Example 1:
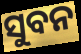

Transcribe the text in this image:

ସୁବନ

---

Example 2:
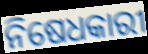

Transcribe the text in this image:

ନିଷେଧକାରୀ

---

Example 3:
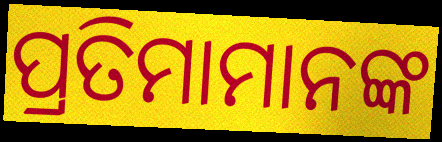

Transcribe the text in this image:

ପ୍ରତିମାମାନଙ୍କ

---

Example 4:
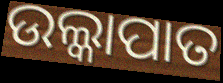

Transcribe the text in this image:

ଉଲ୍କାପାତ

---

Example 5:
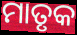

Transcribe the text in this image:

ମାତୃକ